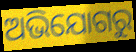
ଅଭିଯୋଗରୁ